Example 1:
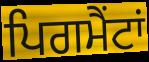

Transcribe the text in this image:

ਪਿਗਮੈਂਟਾਂ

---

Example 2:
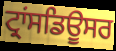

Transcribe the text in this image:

ਟ੍ਰਾਂਸਡਿਊਸਰ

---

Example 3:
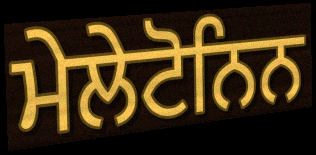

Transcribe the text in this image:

ਮੇਲੇਟੋਨਿਨ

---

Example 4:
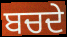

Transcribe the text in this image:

ਬਚਦੇ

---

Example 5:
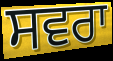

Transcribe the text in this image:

ਸਵਰਾ